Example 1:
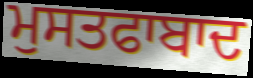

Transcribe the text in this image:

ਮੁਸਤਫਾਬਾਦ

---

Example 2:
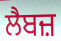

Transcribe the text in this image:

ਲੈਬਜ਼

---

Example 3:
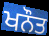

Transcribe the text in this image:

ਖਨੌਤ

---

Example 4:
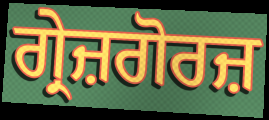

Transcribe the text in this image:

ਗ੍ਰੇਜ਼ਗੋਰਜ਼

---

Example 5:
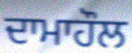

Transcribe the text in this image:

ਦਾਮਾਹੌਲ